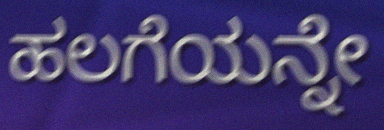
ಹಲಗೆಯನ್ನೇ